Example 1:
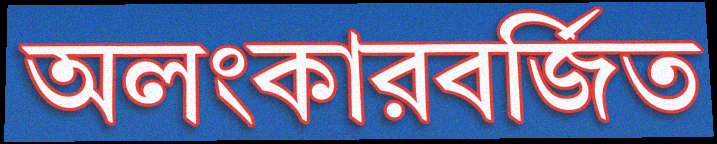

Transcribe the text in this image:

অলংকারবর্জিত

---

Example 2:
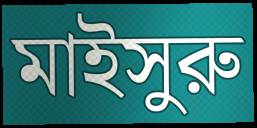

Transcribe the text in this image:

মাইসুরু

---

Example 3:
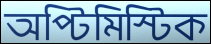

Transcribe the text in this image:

অপ্টিমিস্টিক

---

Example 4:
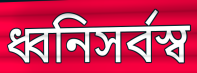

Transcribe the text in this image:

ধ্বনিসর্বস্ব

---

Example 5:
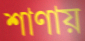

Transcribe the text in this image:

শাণায়